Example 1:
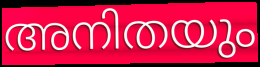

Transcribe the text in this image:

അനിതയും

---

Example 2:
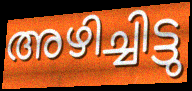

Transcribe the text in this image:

അഴിച്ചിട്ടു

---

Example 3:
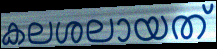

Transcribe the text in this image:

കലശലായത്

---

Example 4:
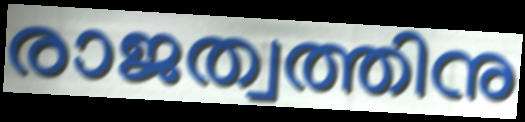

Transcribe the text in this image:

രാജത്വത്തിനു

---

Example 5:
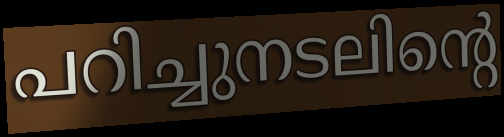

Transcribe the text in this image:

പറിച്ചുനടലിന്റെ